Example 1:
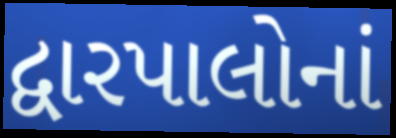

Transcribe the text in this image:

દ્વારપાલોનાં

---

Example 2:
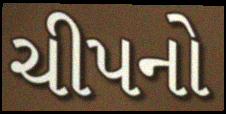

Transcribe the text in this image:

ચીપનો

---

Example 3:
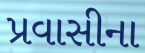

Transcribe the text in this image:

પ્રવાસીના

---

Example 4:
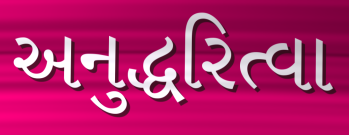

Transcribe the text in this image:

અનુદ્ધરિત્વા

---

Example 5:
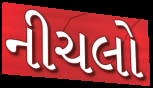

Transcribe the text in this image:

નીચલો